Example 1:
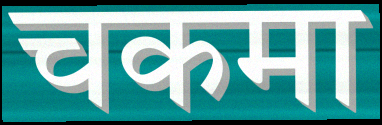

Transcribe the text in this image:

चकमा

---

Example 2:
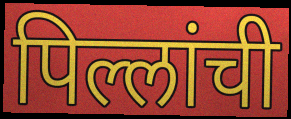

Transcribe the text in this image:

पिल्लांची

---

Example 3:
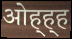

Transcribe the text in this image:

ओह्ह्ह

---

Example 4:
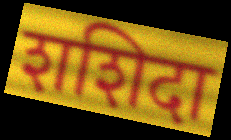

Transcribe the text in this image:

शशिदा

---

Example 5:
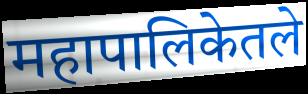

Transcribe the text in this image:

महापालिकेतले